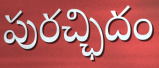
పురచ్ఛిదం